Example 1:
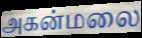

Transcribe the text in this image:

அகன்மலை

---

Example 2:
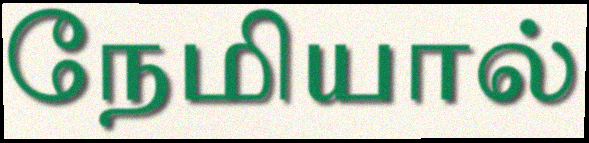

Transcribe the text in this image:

நேமியால்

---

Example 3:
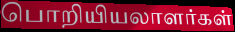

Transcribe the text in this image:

பொறியியலாளர்கள்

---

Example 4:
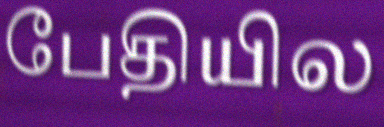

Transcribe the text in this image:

பேதியில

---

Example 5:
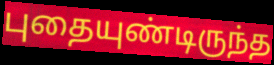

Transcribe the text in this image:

புதையுண்டிருந்த